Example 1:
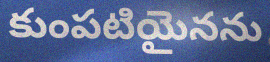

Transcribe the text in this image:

కుంపటియైనను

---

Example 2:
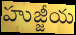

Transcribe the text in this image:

హుజ్జీయ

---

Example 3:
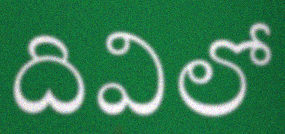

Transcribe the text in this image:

దివిలో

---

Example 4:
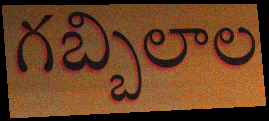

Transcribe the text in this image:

గబ్బిలాల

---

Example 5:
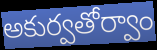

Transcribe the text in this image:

అకుర్వతోర్వాం